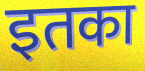
इतका